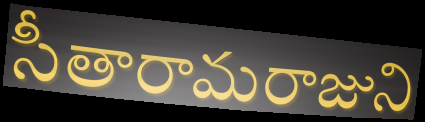
సీతారామరాజుని